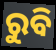
ରୁବି